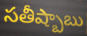
సతీష్బాబు